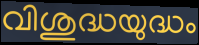
വിശുദ്ധയുദ്ധം